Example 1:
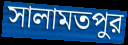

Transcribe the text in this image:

সালামতপুর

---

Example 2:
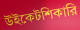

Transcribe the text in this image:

উইকেটশিকারি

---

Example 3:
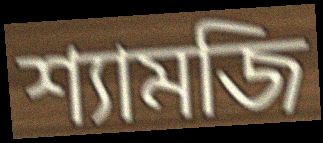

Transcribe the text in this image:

শ্যামজি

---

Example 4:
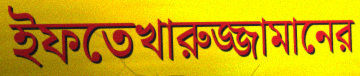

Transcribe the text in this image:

ইফতেখারুজ্জামানের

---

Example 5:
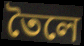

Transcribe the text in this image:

তৈলে